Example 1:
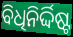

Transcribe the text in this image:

ବିଧିନିର୍ଦ୍ଦିଷ୍ଟ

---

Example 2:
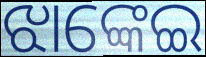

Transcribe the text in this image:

ଝାଙ୍କେଇ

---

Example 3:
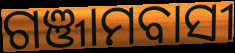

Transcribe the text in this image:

ଗଞ୍ଜାମବାସୀ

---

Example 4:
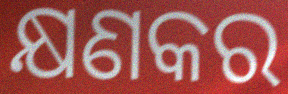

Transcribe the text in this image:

କ୍ଷଣକର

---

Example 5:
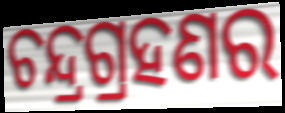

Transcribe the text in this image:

ଚନ୍ଦ୍ରଗ୍ରହଣର